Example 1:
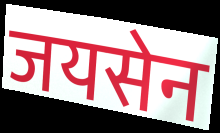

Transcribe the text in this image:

जयसेन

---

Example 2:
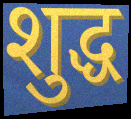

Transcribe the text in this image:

शुद्ध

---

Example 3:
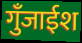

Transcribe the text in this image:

गुँजाईश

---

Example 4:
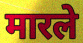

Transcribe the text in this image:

मारले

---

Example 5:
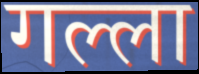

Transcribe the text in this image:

गल्ला